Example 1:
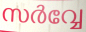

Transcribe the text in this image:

സർവ്വേ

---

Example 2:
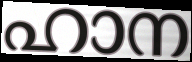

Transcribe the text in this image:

ഹാന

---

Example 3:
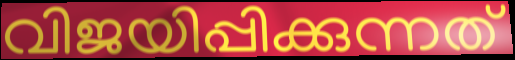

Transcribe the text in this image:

വിജയിപ്പിക്കുന്നത്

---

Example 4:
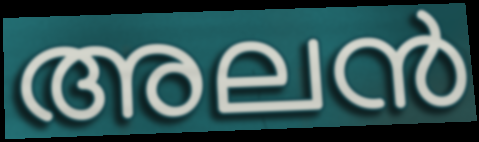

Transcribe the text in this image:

അലൻ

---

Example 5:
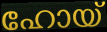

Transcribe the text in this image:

ഹോയ്